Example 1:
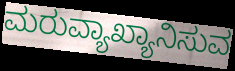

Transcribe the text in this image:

ಮರುವ್ಯಾಖ್ಯಾನಿಸುವ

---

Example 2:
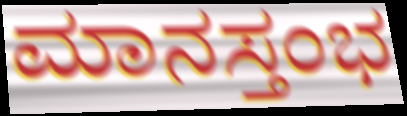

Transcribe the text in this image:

ಮಾನಸ್ತಂಭ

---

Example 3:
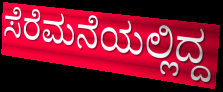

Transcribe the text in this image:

ಸೆರೆಮನೆಯಲ್ಲಿದ್ದ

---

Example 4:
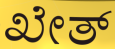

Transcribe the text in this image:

ಖೇತ್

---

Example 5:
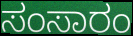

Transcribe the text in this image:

ಸಂಸಾರಂ